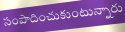
సంపాదించుకుంటున్నారు